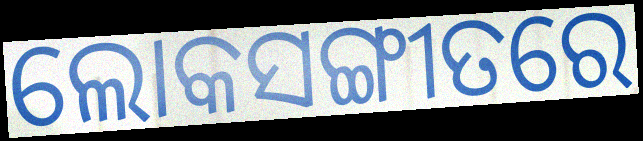
ଲୋକସଙ୍ଗୀତରେ